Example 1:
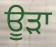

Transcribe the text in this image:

ਊੜਾ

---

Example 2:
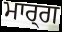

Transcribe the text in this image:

ਮਾਰ੍ਗ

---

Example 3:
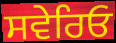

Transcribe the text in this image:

ਸਵੇਰਿਓ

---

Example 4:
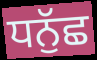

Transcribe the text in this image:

ਧਨੁੱਛ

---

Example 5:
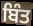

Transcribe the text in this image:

ਬਿੰਤ